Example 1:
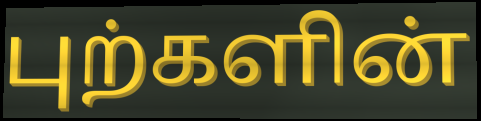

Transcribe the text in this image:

புற்களின்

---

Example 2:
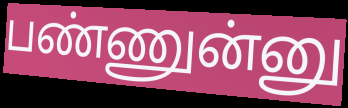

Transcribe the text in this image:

பண்ணுன்னு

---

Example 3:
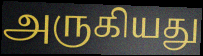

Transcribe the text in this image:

அருகியது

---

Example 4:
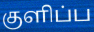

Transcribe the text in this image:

குளிப்ப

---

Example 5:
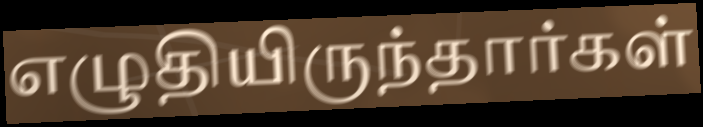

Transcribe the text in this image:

எழுதியிருந்தார்கள்